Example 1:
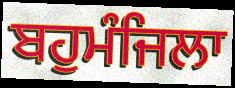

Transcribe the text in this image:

ਬਹੁਮੰਜਿਲਾ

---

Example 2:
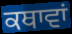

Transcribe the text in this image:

ਕਥਾਵਾਂ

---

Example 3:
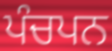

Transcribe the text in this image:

ਪੰਚਪਨ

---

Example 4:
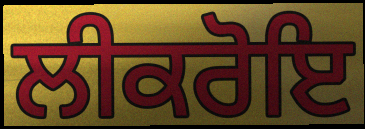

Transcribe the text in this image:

ਲੀਕਰੋਇ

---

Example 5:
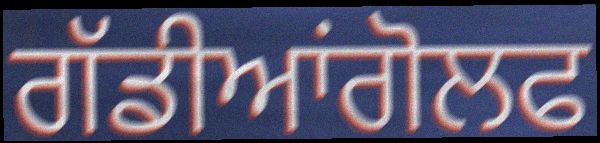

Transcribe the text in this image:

ਗੱਡੀਆਂਗੋਲਫ